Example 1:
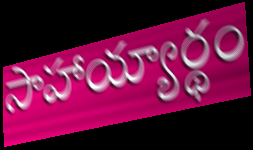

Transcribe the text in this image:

సాహాయ్యార్థం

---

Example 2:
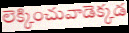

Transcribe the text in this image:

లెక్కించువాడెక్కడ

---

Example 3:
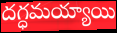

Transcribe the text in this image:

దగ్ధమయ్యాయి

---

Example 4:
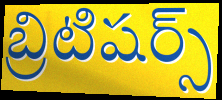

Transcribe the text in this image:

బ్రిటిషర్స్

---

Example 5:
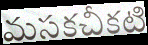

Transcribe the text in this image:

మసకచీకటి